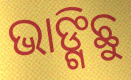
ଭାଙ୍ଗିଛୁ